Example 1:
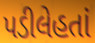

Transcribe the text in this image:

પડીલેહતાં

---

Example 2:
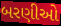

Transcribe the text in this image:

બરણીઓ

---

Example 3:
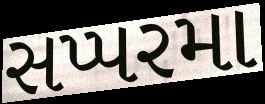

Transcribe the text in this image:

સપ્પરમા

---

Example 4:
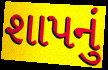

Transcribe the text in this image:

શાપનું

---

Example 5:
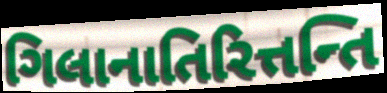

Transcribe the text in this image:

ગિલાનાતિરિત્તન્તિ